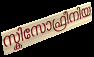
സ്കിസോഫ്രീനിയ